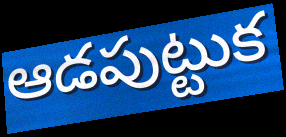
ఆడపుట్టుక